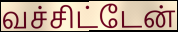
வச்சிட்டேன்